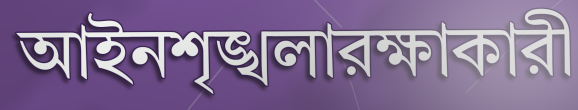
আইনশৃঙ্খলারক্ষাকারী